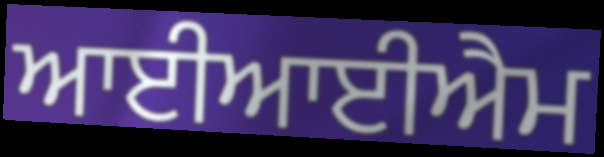
ਆਈਆਈਐਮ